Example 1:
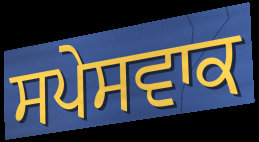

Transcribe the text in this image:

ਸਪੇਸਵਾਕ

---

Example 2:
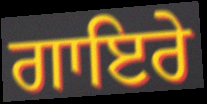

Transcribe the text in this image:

ਗਾਇਰੇ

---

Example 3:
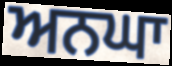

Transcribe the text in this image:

ਅਨਘਾ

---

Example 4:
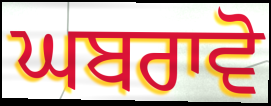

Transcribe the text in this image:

ਘਬਰਾਵੋ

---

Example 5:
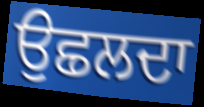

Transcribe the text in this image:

ਉਛਲਦਾ